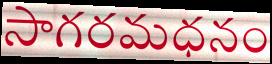
సాగరమధనం